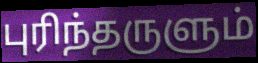
புரிந்தருளும்